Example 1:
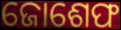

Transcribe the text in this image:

ଜୋଶେଫ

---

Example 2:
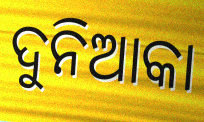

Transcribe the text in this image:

ଦୁନିଆକା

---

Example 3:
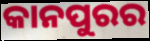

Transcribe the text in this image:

କାନପୁରର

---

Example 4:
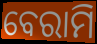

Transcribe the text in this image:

ବେରାମି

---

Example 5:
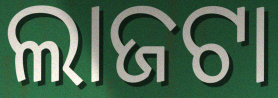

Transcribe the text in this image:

ଲାଜଟା